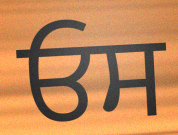
ਓਸ